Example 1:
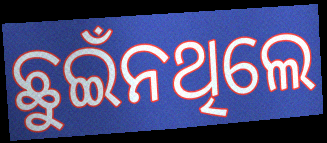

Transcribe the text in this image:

ଛୁଇଁନଥିଲେ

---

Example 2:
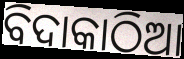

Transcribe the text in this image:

ବିଦାକାଠିଆ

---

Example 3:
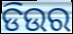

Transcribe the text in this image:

ଡିଉର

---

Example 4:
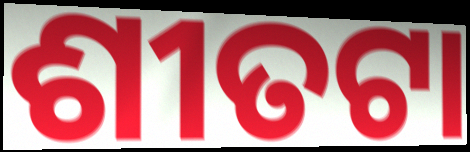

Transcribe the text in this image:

ଶୀତଟା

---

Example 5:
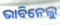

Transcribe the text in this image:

ଭାବିନେଲୁ